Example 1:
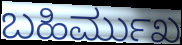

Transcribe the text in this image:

ಬಹಿರ್ಮುಖ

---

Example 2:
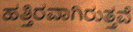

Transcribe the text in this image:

ಹತ್ತಿರವಾಗಿರುತ್ತವೆ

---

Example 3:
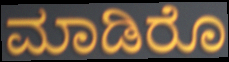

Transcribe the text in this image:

ಮಾಡಿರೊ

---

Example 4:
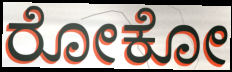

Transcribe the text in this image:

ರೋಕೋ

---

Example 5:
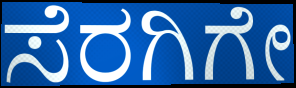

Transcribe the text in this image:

ಸೆರಗಿಗೇ